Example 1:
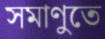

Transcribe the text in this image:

সমাণুতে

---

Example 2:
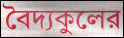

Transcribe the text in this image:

বৈদ্যকুলের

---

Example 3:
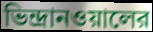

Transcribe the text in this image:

ভিন্দ্রানওয়ালের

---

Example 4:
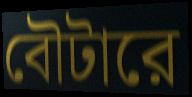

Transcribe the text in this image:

বৌটারে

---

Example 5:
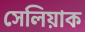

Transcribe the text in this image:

সেলিয়াক